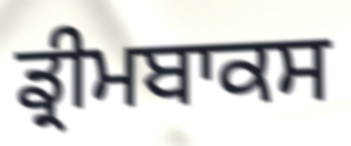
ਡ੍ਰੀਮਬਾਕਸ